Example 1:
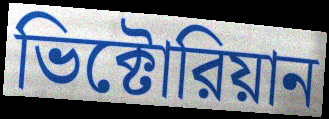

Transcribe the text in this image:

ভিক্টোরিয়ান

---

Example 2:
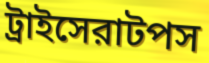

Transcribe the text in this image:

ট্রাইসেরাটপস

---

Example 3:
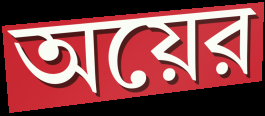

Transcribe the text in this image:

অয়ের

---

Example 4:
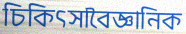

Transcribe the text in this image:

চিকিৎসাবৈজ্ঞানিক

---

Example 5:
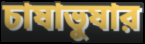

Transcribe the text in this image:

চাষাভুষার